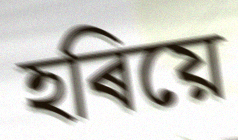
হৰিয়ে